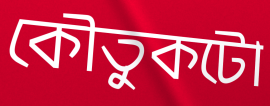
কৌতুকটো